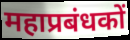
महाप्रबंधकों